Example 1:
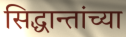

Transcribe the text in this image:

सिद्धान्तांच्या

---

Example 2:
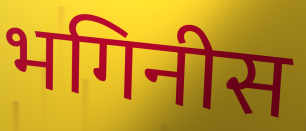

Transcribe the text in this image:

भगिनीस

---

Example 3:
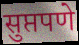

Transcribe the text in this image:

सुप्तपणे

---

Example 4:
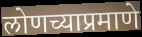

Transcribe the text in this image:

लोणच्याप्रमाणे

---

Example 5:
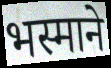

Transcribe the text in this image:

भस्माने